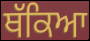
ਥੱਕਿਆ